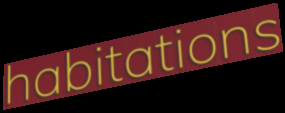
habitations